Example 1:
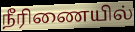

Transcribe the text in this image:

நீரிணையில்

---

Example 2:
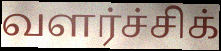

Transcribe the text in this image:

வளர்ச்சிக்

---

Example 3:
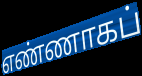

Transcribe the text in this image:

எண்ணாகப்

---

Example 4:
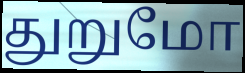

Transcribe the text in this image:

துறுமோ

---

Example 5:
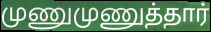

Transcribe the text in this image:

முணுமுணுத்தார்